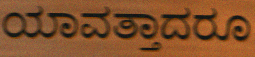
ಯಾವತ್ತಾದರೂ